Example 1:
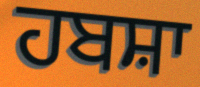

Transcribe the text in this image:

ਹਬਸ਼ਾ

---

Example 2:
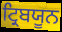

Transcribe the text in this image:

ਟ੍ਰਿਬਯੂਨ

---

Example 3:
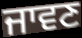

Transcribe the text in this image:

ਜਾਵਣ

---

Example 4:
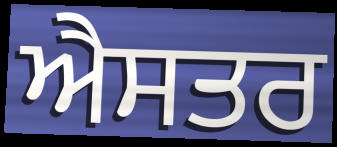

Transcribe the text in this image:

ਐਸਤਰ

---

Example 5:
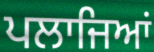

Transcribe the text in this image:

ਪਲਾਜਿਆਂ